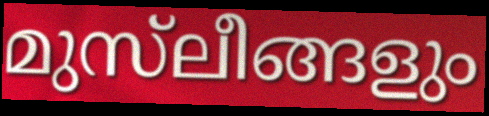
മുസ്‌ലീങ്ങളും